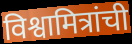
विश्वामित्रांची